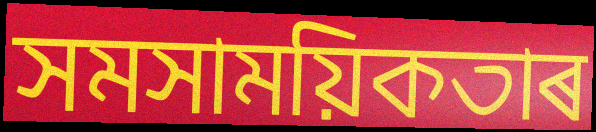
সমসাময়িকতাৰ